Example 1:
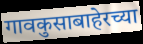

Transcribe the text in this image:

गावकुसाबाहेरच्या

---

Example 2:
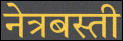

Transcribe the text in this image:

नेत्रबस्ती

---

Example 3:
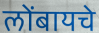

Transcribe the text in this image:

लोंबायचे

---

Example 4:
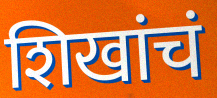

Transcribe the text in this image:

शिखांचं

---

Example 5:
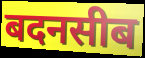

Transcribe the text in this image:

बदनसीब